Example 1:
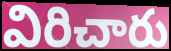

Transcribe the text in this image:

విరిచారు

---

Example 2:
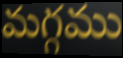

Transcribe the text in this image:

మగ్గము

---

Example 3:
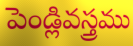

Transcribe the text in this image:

పెండ్లివస్త్రము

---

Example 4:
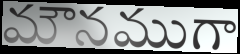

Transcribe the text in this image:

మౌనముగా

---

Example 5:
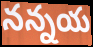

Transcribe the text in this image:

నన్నయ